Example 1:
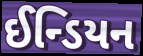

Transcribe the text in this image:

ઈન્ડિયન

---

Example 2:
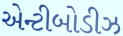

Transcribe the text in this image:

એન્ટીબોડીઝ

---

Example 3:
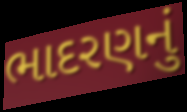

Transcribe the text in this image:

ભાદરણનું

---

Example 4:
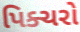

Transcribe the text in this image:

પિક્ચરો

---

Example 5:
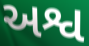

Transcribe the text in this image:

અશ્વ